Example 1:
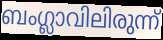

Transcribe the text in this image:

ബംഗ്ലാവിലിരുന്ന്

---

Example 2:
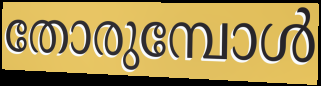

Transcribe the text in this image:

തോരുമ്പോൾ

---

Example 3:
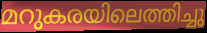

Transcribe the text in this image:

മറുകരയിലെത്തിച്ചു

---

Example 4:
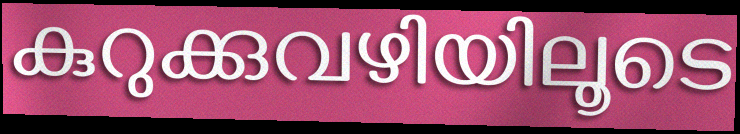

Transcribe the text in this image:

കുറുക്കുവഴിയിലൂടെ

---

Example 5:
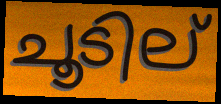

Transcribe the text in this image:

ചൂടില്